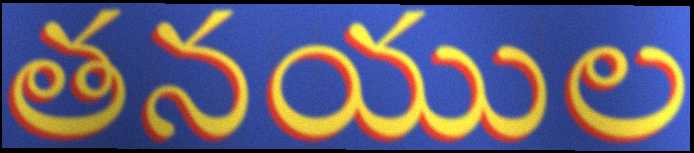
తనయుల